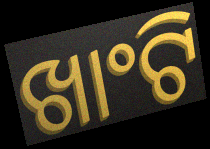
ଖାଂଟି